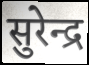
सुरेन्द्र